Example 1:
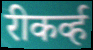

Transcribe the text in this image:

रीकर्व्ह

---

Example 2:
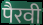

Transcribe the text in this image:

पैरवी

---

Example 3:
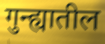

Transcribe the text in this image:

गुन्ह्यातील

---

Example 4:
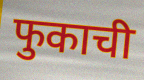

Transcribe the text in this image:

फुकाची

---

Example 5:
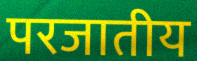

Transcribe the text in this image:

परजातीय